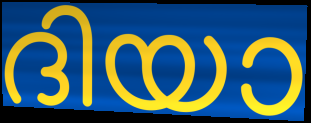
ദിയാ